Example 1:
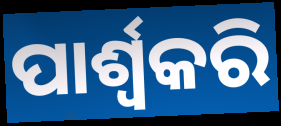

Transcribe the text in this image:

ପାର୍ଶ୍ଵକରି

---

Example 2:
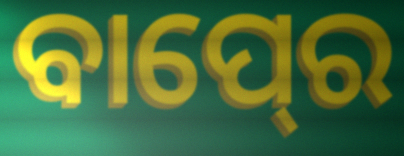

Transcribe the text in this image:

ବାପ୍‍ରେ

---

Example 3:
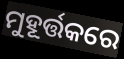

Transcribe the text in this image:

ମୁହୂର୍ତ୍ତକରେ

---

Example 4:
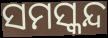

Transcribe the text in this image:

ସମସ୍କନ୍ଦ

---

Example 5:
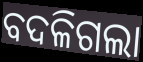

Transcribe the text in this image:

ବଦଳିଗଲା